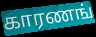
காரணங்